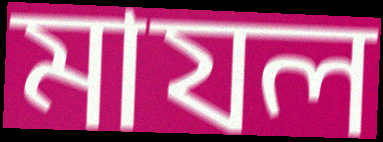
মাযল